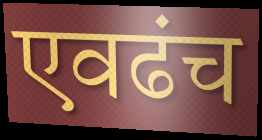
एवढंच